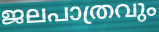
ജലപാത്രവും